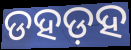
ଡହଡ଼ହ